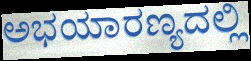
ಅಭಯಾರಣ್ಯದಲ್ಲಿ